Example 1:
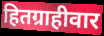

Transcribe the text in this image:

हितग्राहीवार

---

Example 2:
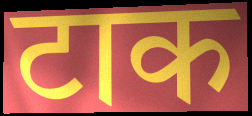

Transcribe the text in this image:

टाक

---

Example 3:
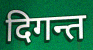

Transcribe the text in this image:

दिगन्त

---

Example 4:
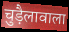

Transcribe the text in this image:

चुड़ैलावाला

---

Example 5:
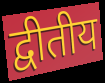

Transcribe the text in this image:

द्वीतीय